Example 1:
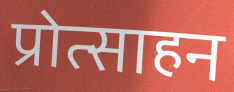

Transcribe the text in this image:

प्रोत्साहन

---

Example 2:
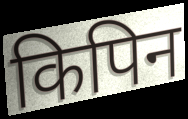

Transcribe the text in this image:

किपिन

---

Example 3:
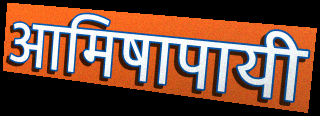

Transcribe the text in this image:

आमिषापायी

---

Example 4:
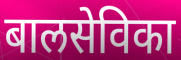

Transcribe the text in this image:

बालसेविका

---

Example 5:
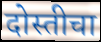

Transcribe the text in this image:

दोस्तीचा